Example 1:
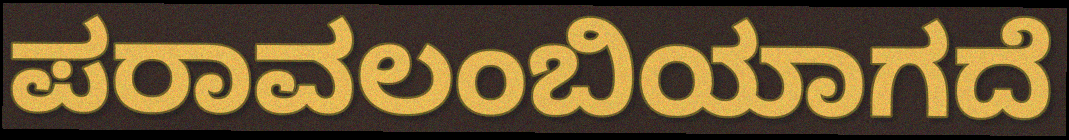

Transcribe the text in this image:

ಪರಾವಲಂಬಿಯಾಗದೆ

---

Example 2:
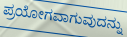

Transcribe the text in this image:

ಪ್ರಯೋಗವಾಗುವುದನ್ನು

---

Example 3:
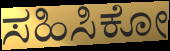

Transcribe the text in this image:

ಸಹಿಸಿಕೋ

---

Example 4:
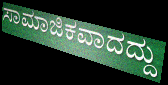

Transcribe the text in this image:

ಸಾಮಾಜಿಕವಾದದ್ದು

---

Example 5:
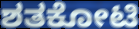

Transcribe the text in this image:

ಶತಕೋಟಿ